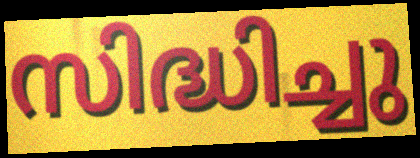
സിദ്ധിച്ചു